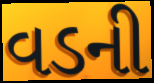
વડની